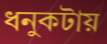
ধনুকটায়